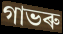
গাভৰু